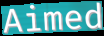
Aimed